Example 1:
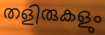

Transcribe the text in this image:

തളിരുകളും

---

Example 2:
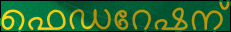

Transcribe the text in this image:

ഫെഡറേഷന്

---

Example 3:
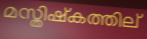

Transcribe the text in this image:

മസ്തിഷ്കത്തില്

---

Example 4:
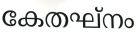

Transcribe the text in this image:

കേതഘ്നം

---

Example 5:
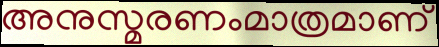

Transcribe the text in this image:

അനുസ്മരണംമാത്രമാണ്